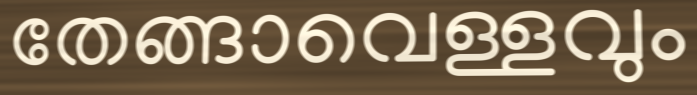
തേങ്ങാവെള്ളവും